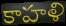
కాహళి